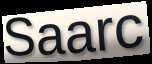
Saarc